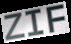
ZIF